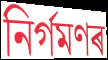
নিৰ্গমণৰ